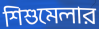
শিশুমেলার